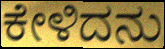
ಕೇಳಿದನು